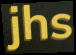
jhs